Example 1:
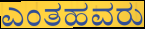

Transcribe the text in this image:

ಎಂತಹವರು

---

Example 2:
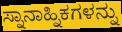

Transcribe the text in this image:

ಸ್ನಾನಾಹ್ನಿಕಗಳನ್ನು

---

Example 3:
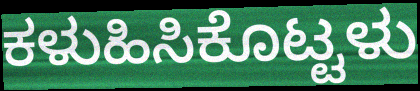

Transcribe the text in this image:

ಕಳುಹಿಸಿಕೊಟ್ಟಳು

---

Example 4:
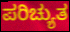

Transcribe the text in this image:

ಪರಿಚ್ಯುತ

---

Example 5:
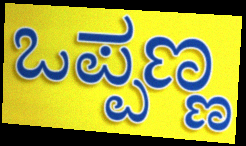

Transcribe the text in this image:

ಒಪ್ಪಣ್ಣ